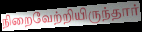
நிறைவேற்றியிருந்தார்